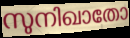
സുനിഖാതോ